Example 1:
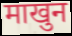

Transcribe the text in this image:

माखुन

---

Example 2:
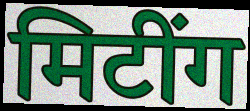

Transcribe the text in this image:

मिटींग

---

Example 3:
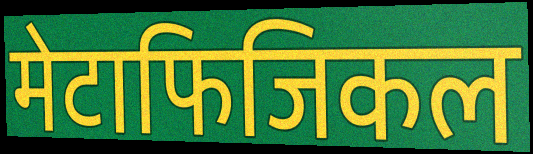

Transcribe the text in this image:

मेटाफिजिकल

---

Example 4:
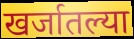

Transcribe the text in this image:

खर्जातल्या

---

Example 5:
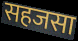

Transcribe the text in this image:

सहजसा